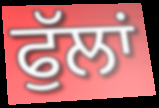
ਫੁੱਲਾਂ